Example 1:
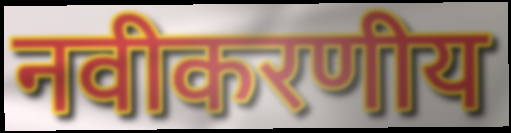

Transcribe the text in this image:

नवीकरणीय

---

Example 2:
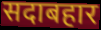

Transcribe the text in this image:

सदाबहार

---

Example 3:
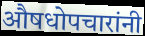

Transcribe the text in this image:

औषधोपचारांनी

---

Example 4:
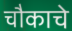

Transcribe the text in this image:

चौकाचे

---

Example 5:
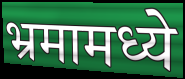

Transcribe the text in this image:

भ्रमामध्ये